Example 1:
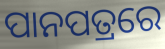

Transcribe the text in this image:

ପାନପତ୍ରରେ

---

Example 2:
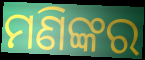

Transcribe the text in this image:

ମଣିଙ୍କର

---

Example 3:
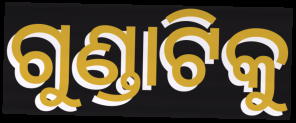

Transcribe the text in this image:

ଗୁଣ୍ଡାଟିକୁ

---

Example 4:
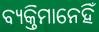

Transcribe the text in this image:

ବ୍ୟକ୍ତିମାନେହିଁ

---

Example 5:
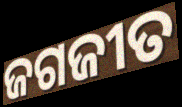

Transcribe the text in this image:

ଜଗଜୀତ